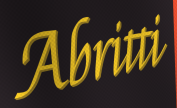
Abritti